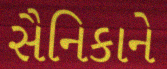
સૈનિકાને